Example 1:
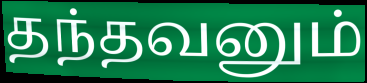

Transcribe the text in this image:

தந்தவனும்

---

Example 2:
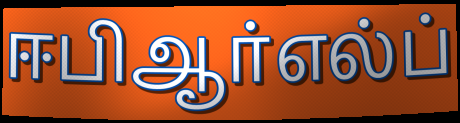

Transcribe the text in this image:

ஈபிஆர்எல்ப்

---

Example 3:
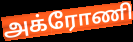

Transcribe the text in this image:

அக்ரோணி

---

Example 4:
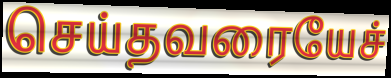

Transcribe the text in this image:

செய்தவரையேச்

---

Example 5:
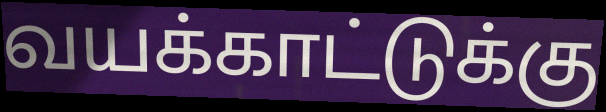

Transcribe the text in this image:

வயக்காட்டுக்கு